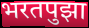
भरतपुझा